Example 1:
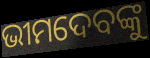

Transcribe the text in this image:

ଭୀମଦେବଙ୍କୁ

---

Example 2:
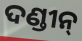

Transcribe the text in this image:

ଦଣ୍ଡୀନ୍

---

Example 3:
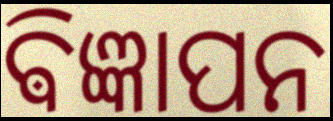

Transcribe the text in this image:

ଵିଜ୍ଞାପନ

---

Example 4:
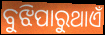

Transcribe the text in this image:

ବୁଝିପାରୁଥାଏଁ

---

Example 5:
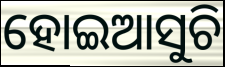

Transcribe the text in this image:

ହୋଇଆସୁଚି